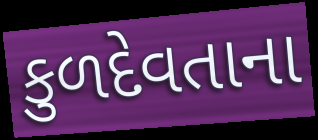
કુળદેવતાના